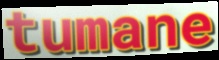
tumane